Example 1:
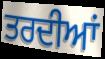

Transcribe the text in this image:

ਤਰਦੀਆਂ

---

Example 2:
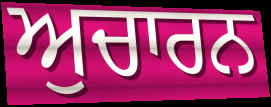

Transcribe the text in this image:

ਅੁਚਾਰਨ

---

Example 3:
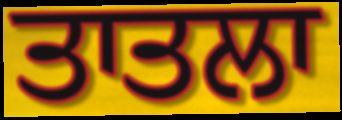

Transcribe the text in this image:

ਤਾਤਲਾ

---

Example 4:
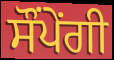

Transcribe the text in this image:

ਸੌਂਪੇਂਗੀ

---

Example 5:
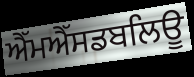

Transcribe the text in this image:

ਐੱਮਐੱਸਡਬਲਿਊ